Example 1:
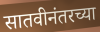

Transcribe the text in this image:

सातवीनंतरच्या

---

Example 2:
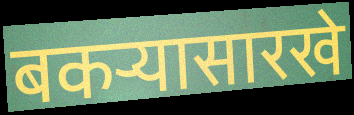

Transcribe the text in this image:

बकऱ्यासारखे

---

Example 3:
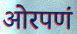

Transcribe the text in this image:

ओरपणं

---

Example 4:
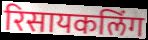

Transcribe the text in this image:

रिसायकलिंग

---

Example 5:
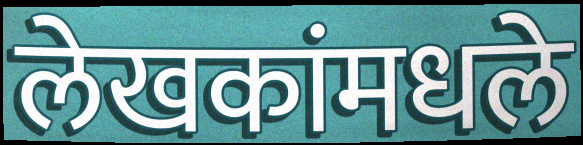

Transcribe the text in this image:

लेखकांमधले